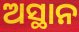
ଅସ୍ଥାନ